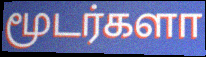
மூடர்களா